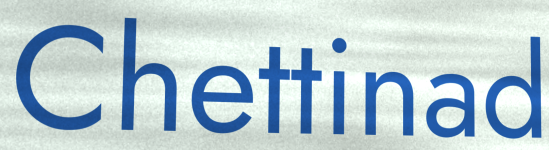
Chettinad